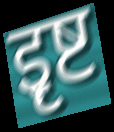
इृष्ट